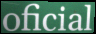
oficial